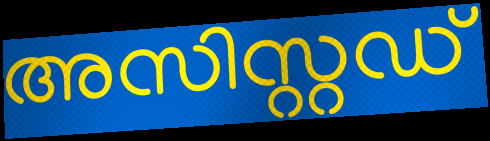
അസിസ്റ്റഡ്